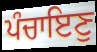
ਪੰਚਾਇਣੁ